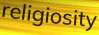
religiosity